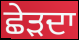
ਛੇੜਦਾ